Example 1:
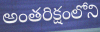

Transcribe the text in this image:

అంతరిక్షంలోని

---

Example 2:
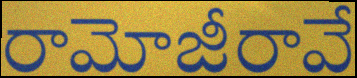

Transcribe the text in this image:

రామోజీరావే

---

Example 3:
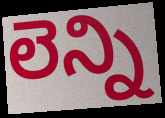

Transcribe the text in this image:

లెన్ని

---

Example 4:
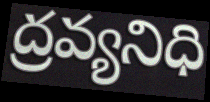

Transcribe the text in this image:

ద్రవ్యనిధి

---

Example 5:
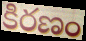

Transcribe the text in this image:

కిరణం